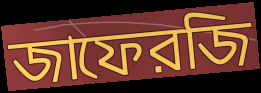
জাফেরজি